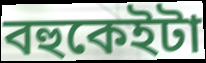
বহুকেইটা